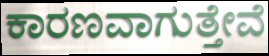
ಕಾರಣವಾಗುತ್ತೇವೆ